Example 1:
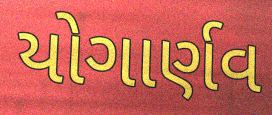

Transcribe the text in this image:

યોગાર્ણવ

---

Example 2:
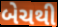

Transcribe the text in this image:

બેચથી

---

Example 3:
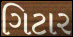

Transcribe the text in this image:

ગિટાર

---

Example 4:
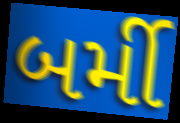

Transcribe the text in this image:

બર્મી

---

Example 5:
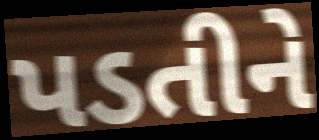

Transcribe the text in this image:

પડતીને